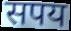
सपय